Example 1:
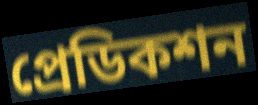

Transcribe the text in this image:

প্রেডিকশন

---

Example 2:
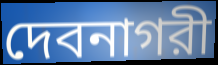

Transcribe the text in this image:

দেবনাগরী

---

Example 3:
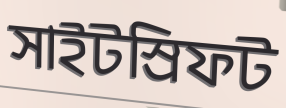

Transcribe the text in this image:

সাইটস্রিফট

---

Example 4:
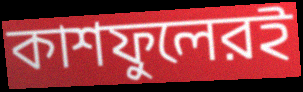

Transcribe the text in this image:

কাশফুলেরই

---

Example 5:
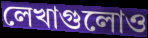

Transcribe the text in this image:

লেখাগুলোও